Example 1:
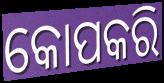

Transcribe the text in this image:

କୋପକରି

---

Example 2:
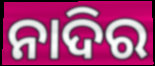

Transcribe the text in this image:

ନାଦିର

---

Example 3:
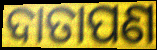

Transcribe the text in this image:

ଦାତାପଣ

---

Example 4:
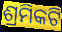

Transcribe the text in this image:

ଶ୍ରମିକଟି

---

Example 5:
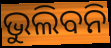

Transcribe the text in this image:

ଭୁଲିବନି